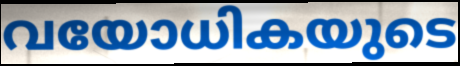
വയോധികയുടെ